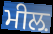
ਮੀਲ਼